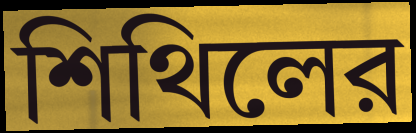
শিথিলের